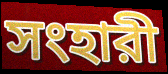
সংহারী